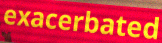
exacerbated